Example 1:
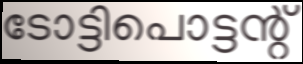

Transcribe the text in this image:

ടോട്ടിപൊട്ടന്റ്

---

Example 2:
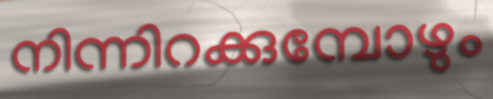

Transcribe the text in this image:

നിന്നിറക്കുമ്പോഴും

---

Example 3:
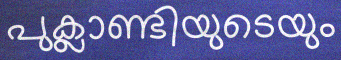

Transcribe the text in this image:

പുക്ലാണ്ടിയുടെയും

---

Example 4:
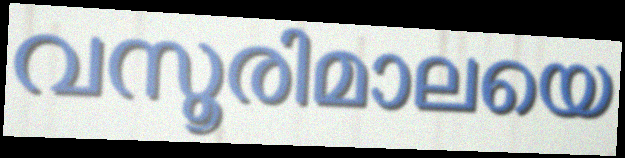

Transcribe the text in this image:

വസൂരിമാലയെ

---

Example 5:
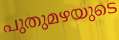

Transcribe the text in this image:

പുതുമഴയുടെ